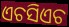
ଏଚସିଏଚ